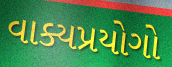
વાક્યપ્રયોગો